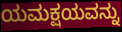
ಯಮಕ್ಷಯವನ್ನು